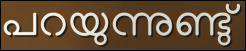
പറയുന്നുണ്ടു്